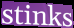
stinks